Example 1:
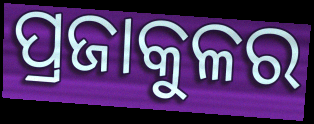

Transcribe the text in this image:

ପ୍ରଜାକୁଳର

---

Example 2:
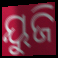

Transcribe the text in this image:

ୟୁଜି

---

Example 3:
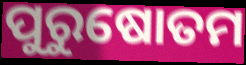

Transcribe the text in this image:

ପୁରୁଷୋତମ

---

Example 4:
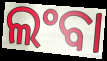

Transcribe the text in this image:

ଲଂବା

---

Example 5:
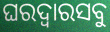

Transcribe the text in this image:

ଘରଦ୍ୱାରସବୁ